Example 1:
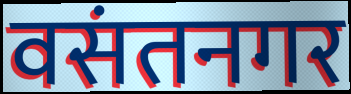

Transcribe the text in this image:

वसंतनगर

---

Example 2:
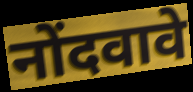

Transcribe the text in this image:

नोंदवावे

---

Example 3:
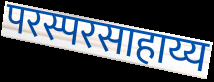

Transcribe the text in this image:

परस्परसाहाय्य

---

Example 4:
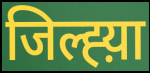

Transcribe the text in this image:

जिल्ह्य़ा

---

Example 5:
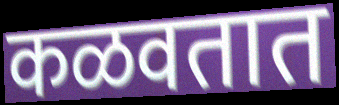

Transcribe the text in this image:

कळवतात